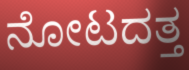
ನೋಟದತ್ತ